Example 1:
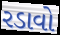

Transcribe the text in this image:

રડાવો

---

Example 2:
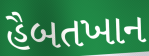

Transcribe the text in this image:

હૈબતખાન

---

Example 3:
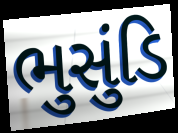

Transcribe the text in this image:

ભુસુંડિ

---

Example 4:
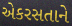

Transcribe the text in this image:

એકરસતાને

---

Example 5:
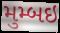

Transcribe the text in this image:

મુમ્બઇ